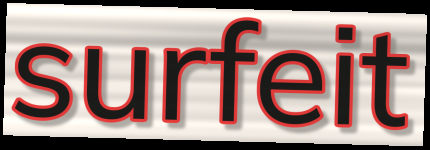
surfeit